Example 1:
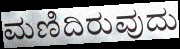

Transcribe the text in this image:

ಮಣಿದಿರುವುದು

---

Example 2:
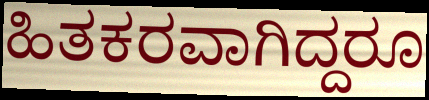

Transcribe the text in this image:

ಹಿತಕರವಾಗಿದ್ದರೂ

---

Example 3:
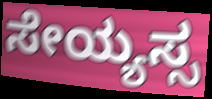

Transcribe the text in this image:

ಸೇಯ್ಯಸ್ಸ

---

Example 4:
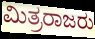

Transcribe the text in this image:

ಮಿತ್ರರಾಜರು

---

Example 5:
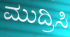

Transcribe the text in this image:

ಮುದ್ರಿಸಿ